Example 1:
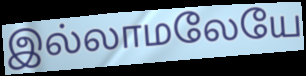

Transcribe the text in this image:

இல்லாமலேயே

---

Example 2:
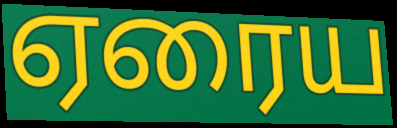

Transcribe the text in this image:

ஏரைய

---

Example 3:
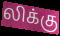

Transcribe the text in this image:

லிக்கு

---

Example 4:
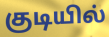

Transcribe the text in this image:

குடியில்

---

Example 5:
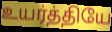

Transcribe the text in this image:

உயர்த்தியே